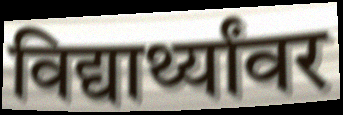
विद्यार्थ्यांवर